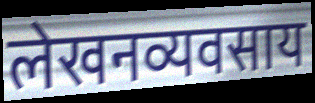
लेखनव्यवसाय